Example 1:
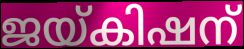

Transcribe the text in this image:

ജയ്കിഷന്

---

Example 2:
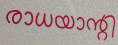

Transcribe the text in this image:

രാധയാന്റി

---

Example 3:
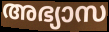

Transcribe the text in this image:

അഭ്യാസ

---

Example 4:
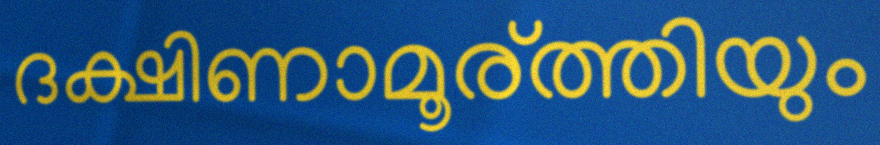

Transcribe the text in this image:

ദക്ഷിണാമൂര്ത്തിയും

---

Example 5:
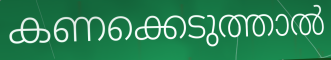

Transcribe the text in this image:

കണക്കെടുത്താൽ